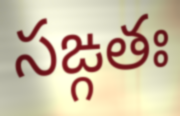
సఙ్గతః